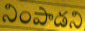
నింపాడని